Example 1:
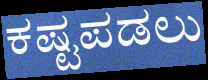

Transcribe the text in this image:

ಕಷ್ಟಪಡಲು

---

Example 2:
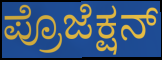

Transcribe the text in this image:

ಪ್ರೊಜೆಕ್ಷನ್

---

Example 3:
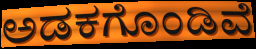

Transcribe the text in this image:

ಅಡಕಗೊಂಡಿವೆ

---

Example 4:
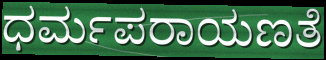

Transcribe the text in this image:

ಧರ್ಮಪರಾಯಣತೆ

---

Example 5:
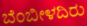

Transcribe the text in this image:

ಬೆಂಬೀಳದಿರು